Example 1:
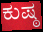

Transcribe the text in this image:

ಕುಷ್ಠ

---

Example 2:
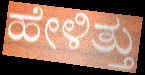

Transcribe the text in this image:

ಹೇಳಿತ್ತು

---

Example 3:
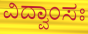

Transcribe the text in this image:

ವಿದ್ವಾಂಸಃ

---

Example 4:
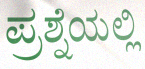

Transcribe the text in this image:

ಪ್ರಶ್ನೆಯಲ್ಲಿ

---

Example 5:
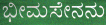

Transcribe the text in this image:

ಭೀಮಸೇನನು